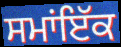
ਸਮਾਂਇੱਕ